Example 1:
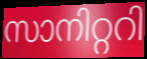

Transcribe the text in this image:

സാനിറ്ററി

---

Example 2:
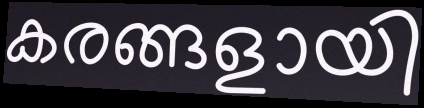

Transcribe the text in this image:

കരങ്ങളായി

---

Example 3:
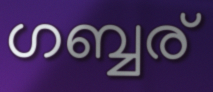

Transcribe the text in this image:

ഗബ്ബര്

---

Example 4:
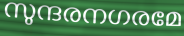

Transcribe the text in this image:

സുന്ദരനഗരമേ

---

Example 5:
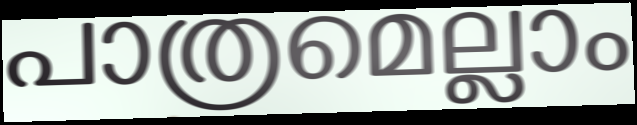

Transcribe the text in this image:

പാത്രമെല്ലാം